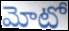
మోటో